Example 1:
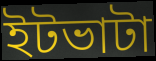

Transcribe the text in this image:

ইটভাটা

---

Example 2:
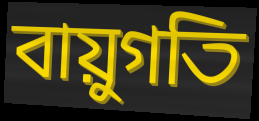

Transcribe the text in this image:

বায়ুগতি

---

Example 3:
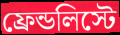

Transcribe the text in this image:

ফ্রেন্ডলিস্টে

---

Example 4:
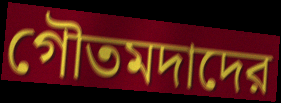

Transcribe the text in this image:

গৌতমদাদের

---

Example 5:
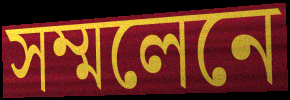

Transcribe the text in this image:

সম্মলেনে